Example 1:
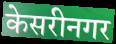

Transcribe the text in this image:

केसरीनगर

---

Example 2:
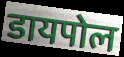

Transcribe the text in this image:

डायपोल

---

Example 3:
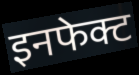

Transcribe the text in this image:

इनफेक्ट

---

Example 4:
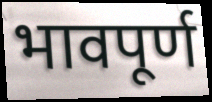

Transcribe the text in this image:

भावपूर्ण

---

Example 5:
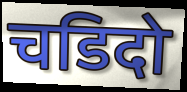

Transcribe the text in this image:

चडिदो